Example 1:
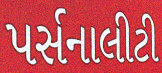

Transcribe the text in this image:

પર્સનાલીટી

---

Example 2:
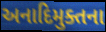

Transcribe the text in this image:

અનાદિમુક્તના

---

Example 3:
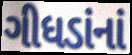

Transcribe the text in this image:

ગીધડાંનાં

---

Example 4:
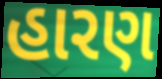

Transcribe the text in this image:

હારણ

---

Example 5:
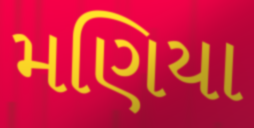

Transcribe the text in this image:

મણિયા